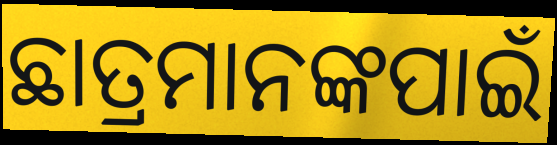
ଛାତ୍ରମାନଙ୍କପାଇଁ